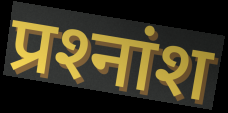
प्रश्‍नांश